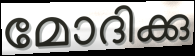
മോദിക്കു